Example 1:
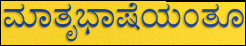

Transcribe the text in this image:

ಮಾತೃಭಾಷೆಯಂತೂ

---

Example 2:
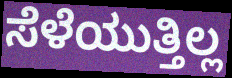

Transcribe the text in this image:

ಸೆಳೆಯುತ್ತಿಲ್ಲ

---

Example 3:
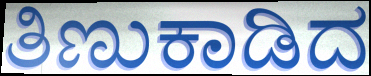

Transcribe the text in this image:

ತಿಣುಕಾಡಿದ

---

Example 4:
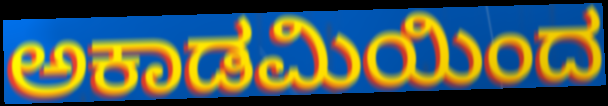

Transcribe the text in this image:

ಅಕಾಡಮಿಯಿಂದ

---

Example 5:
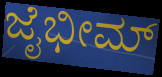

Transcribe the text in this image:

ಜೈಭೀಮ್